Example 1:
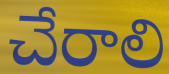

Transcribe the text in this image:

చేరాలి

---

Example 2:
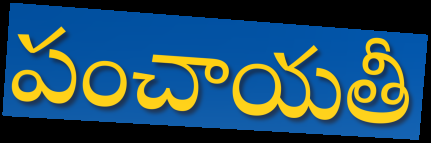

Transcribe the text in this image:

పంచాయతీ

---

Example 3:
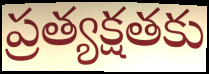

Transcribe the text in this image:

ప్రత్యక్షతకు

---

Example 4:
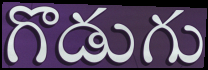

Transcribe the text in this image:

గొడుగు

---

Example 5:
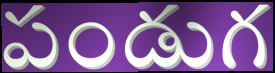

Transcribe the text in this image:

పండుగ